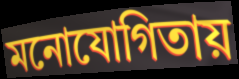
মনোযোগিতায়